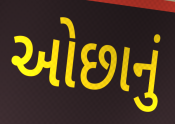
ઓછાનું